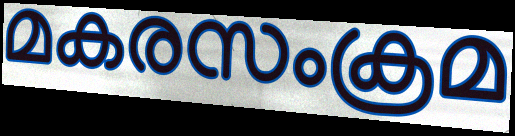
മകരസംക്രമ